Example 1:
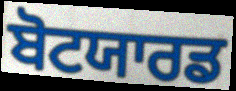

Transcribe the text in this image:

ਬੋਟਯਾਰਡ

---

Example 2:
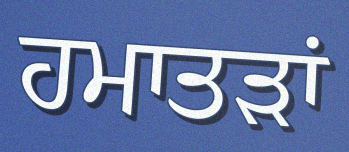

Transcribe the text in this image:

ਹਮਾਤੜਾਂ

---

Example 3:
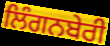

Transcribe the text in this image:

ਲਿੰਗਨਬੇਰੀ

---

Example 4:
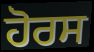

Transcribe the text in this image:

ਹੋਰਸ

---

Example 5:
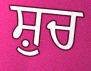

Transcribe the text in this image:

ਸ਼ੁਚ